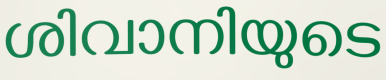
ശിവാനിയുടെ